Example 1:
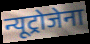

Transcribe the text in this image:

न्यूट्रोजेना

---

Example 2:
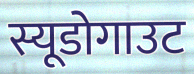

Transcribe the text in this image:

स्यूडोगाउट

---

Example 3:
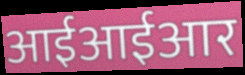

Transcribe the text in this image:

आईआईआर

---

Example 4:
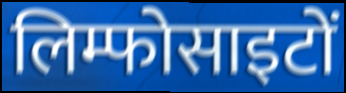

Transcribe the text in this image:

लिम्फोसाइटों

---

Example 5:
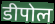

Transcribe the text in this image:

डीपोल